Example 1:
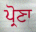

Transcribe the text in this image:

ਪ੍ਰੋਣਾ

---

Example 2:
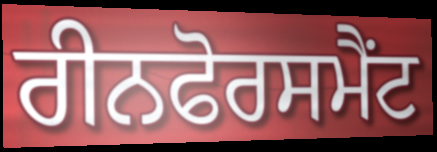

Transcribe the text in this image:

ਰੀਨਫੋਰਸਮੈਂਟ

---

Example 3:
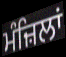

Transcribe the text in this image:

ਮੰਜ਼ਿਲਾਂ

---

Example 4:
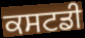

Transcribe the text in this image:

ਕਸਟਡੀ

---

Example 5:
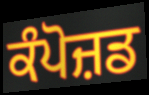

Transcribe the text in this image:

ਕੰਪੋਜ਼ਡ